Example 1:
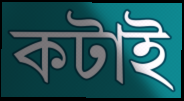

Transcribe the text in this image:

কটাই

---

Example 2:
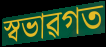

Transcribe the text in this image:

স্বভাৱগত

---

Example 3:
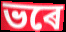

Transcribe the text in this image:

ভৰে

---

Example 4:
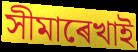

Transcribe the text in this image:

সীমাৰেখাই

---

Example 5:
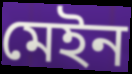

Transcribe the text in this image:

মেইন